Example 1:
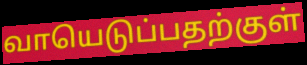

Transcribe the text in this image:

வாயெடுப்பதற்குள்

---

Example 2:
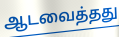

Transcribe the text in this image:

ஆடவைத்தது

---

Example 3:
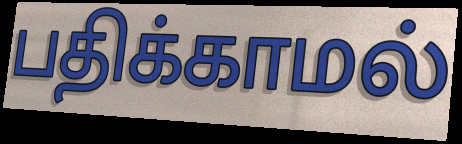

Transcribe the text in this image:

பதிக்காமல்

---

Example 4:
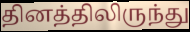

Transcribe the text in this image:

தினத்திலிருந்து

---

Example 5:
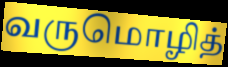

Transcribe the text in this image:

வருமொழித்